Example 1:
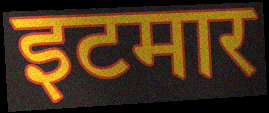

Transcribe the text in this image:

इटमार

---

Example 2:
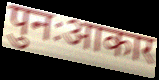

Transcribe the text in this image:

पुनःआकार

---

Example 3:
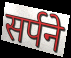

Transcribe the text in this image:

सर्पने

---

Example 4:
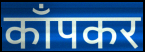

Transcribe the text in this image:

काँपकर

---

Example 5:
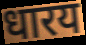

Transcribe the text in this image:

धारय